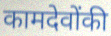
कामदेवोंकी